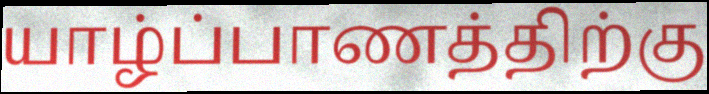
யாழ்ப்பாணத்திற்கு